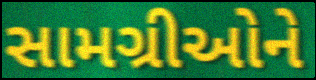
સામગ્રીઓને